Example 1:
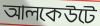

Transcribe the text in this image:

আলকেউটে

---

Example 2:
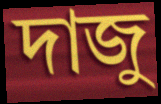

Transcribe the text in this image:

দাজু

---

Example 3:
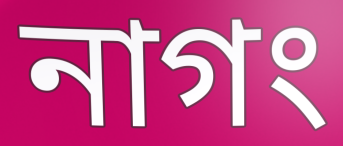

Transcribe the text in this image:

নাগং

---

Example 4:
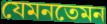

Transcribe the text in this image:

যেমনতেমন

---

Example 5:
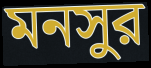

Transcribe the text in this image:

মনসুর